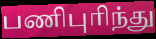
பணிபுரிந்து